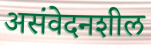
असंवेदनशील